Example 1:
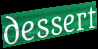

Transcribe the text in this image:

dessert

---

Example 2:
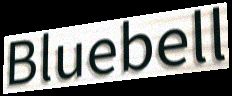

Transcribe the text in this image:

Bluebell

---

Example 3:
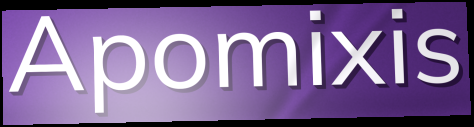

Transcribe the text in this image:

Apomixis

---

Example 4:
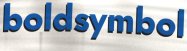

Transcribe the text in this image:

boldsymbol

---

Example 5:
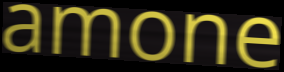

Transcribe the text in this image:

amone